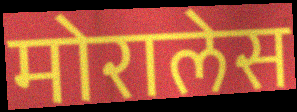
मोरालेस